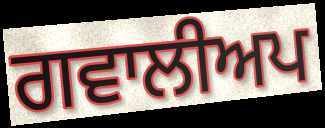
ਗਵਾਲੀਅਪ